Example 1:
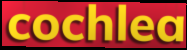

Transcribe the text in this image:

cochlea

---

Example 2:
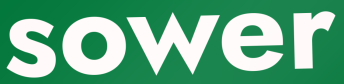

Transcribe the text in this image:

sower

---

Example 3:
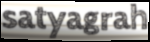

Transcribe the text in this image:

satyagrah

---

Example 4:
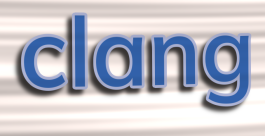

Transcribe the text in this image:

clang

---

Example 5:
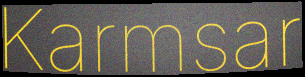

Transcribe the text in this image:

Karmsar